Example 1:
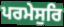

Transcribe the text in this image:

ਪਰਮੇਸੁਰਿ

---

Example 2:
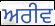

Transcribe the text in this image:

ਅਰੀਵ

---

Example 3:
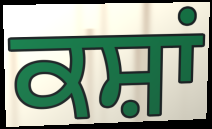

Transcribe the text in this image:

ਕਸ਼ਾਂ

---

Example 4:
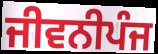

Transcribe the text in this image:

ਜੀਵਨੀਪੰਜ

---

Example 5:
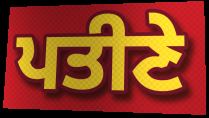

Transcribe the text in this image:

ਪਤੀਣੇ